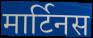
मार्टिनस